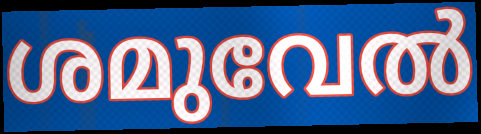
ശമുവേൽ